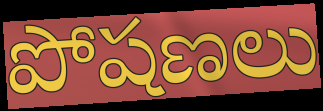
పోషణలు